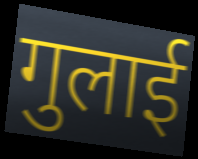
गुलाई